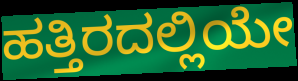
ಹತ್ತಿರದಲ್ಲಿಯೇ